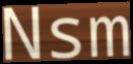
Nsm